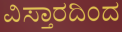
ವಿಸ್ತಾರದಿಂದ